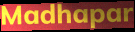
Madhapar